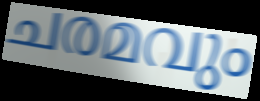
ചരമവും